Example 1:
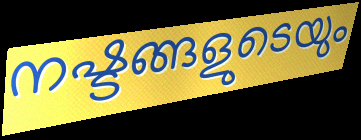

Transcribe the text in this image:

നഷ്ടങ്ങളുടെയും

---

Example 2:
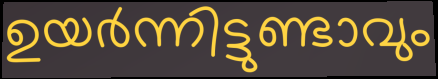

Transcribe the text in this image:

ഉയർന്നിട്ടുണ്ടാവും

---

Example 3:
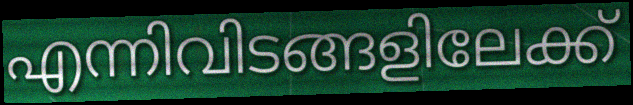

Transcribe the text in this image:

എന്നിവിടങ്ങളിലേക്ക്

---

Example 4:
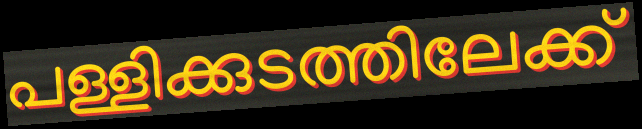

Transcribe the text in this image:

പള്ളിക്കുടത്തിലേക്ക്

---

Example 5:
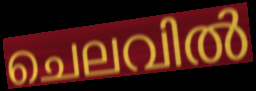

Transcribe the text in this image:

ചെലവിൽ